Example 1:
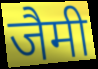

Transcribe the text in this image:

जैमी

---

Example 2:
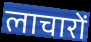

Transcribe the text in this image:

लाचारों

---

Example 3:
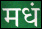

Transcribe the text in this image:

मधं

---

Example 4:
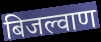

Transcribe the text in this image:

बिजल्वाण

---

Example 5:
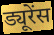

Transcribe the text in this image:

ड्यूरेंस